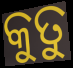
କୁତୁ